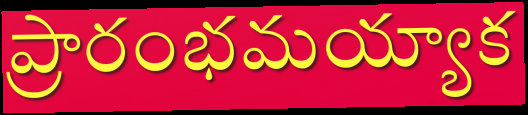
ప్రారంభమయ్యాక